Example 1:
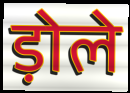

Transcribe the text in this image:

ड़ोले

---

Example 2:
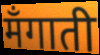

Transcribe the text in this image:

मँगाती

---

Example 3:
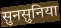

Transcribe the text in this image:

सुनसुनिया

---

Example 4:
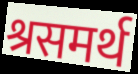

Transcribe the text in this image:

श्रसमर्थ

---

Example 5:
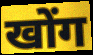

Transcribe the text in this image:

खोंग